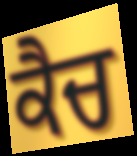
ਕੈਚ